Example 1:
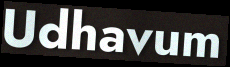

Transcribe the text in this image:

Udhavum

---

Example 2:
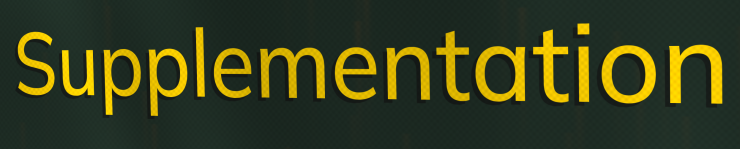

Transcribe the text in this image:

Supplementation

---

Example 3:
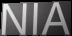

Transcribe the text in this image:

NIA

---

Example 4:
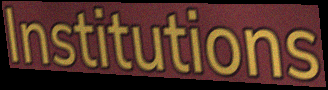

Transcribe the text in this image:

Institutions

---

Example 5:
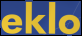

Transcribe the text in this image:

eklo